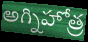
అగ్నిహోత్ర